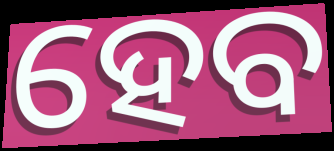
ହେବ